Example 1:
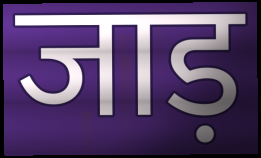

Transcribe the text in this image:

जाड़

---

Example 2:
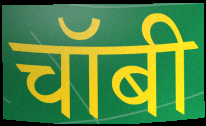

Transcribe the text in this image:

चॉबी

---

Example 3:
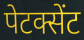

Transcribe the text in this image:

पेटक्सेंट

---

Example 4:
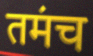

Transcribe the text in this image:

तमंच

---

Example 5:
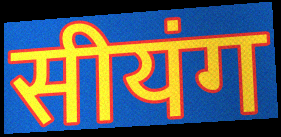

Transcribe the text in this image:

सीयंग